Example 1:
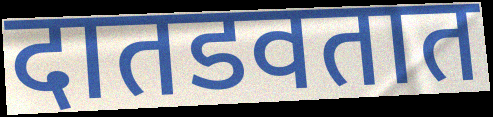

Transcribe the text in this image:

दातडवतात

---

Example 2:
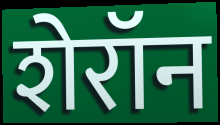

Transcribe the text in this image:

शेरॉन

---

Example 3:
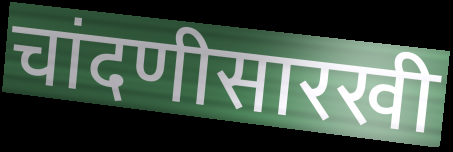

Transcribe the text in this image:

चांदणीसारखी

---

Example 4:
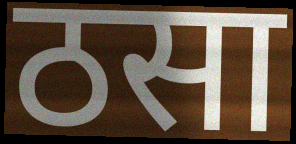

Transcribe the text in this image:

ठसा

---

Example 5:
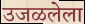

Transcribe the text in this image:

उजळलेला